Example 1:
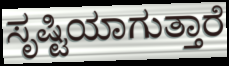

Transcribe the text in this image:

ಸೃಷ್ಟಿಯಾಗುತ್ತಾರೆ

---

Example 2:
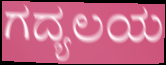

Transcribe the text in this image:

ಗದ್ಯಲಯ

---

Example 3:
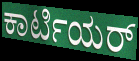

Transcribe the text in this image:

ಕಾರ್ಟಿಯರ್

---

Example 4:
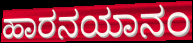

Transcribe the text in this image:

ಹಾರನಯಾನಂ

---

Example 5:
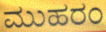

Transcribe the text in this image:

ಮುಹರಂ